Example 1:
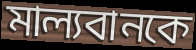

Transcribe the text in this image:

মাল্যবানকে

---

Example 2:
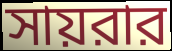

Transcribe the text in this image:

সায়রার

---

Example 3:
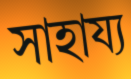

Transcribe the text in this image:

সাহায্য়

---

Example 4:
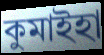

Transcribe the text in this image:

কুমাইহা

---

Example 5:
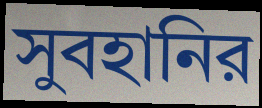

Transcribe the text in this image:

সুবহানির